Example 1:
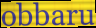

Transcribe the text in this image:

obbaru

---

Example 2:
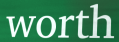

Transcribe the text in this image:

worth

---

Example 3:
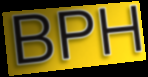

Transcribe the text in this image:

BPH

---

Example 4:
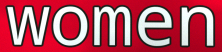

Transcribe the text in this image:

women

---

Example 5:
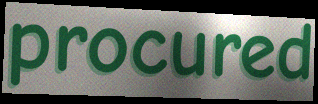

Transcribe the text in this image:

procured